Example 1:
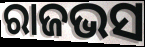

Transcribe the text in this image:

ରାଜଭସ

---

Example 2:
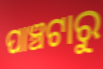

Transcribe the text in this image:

ପାଞ୍ଚଟାରୁ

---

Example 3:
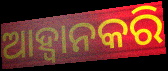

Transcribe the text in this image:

ଆହ୍ୱାନକରି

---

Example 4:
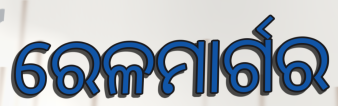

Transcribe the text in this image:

ରେଳମାର୍ଗର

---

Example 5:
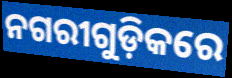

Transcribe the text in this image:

ନଗରୀଗୁଡ଼ିକରେ